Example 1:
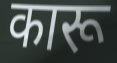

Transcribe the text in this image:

कारू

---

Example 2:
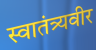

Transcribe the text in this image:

स्वातंत्र्यवीर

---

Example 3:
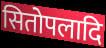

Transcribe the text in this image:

सितोपलादि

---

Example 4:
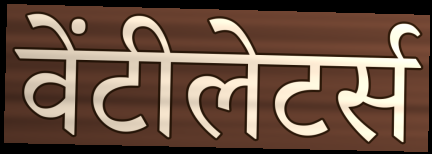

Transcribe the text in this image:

वेंटीलेटर्स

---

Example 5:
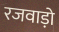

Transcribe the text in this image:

रजवाड़ो